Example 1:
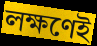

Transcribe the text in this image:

লক্ষণেই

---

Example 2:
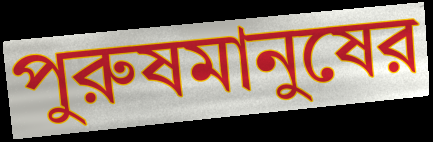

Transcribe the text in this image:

পুরুষমানুষের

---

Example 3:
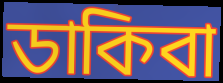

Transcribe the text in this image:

ডাকিবা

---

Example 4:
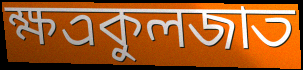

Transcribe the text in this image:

ক্ষত্রকুলজাত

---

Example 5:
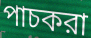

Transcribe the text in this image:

পাচকরা